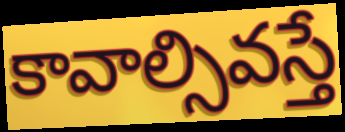
కావాల్సివస్తే